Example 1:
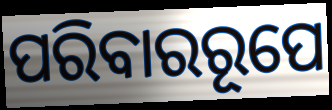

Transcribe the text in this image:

ପରିବାରରୂପେ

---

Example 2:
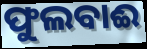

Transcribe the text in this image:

ଫୁଲବାଈ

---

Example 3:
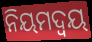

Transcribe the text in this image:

ନିୟମଦ୍ୱୟ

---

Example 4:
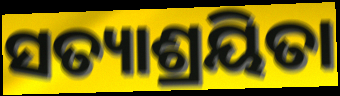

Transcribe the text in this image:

ସତ୍ୟାଶ୍ରୟିତା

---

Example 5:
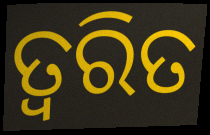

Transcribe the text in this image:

ତ୍ବରିତ